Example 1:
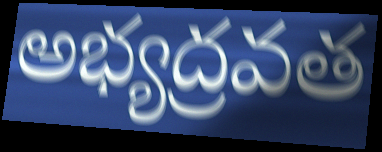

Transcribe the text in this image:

అభ్యద్రవత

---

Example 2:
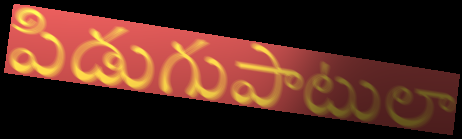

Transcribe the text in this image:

పిడుగుపాటులా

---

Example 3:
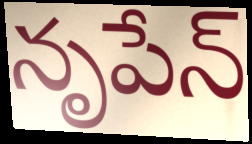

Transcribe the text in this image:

నృపేన్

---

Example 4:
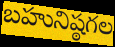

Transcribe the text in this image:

బహునిష్ఠగల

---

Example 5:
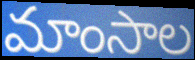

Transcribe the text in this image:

మాంసాల